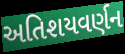
અતિશયવર્ણન